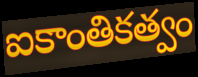
ఐకాంతికత్వం